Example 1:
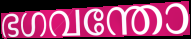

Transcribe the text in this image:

ഭഗവന്തോ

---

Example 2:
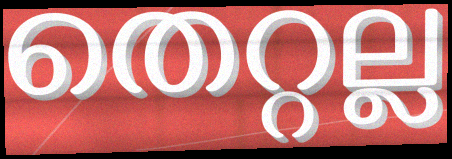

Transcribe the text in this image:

തെറ്റല്ല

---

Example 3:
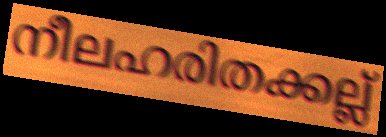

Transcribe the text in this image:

നീലഹരിതക്കല്ല്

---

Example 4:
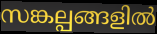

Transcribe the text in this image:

സങ്കല്പങ്ങളിൽ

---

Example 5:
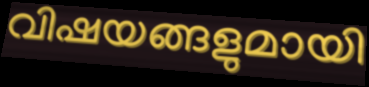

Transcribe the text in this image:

വിഷയങ്ങളുമായി